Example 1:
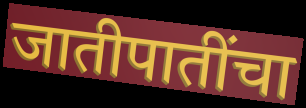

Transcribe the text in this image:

जातीपातींचा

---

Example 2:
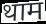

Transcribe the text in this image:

थाम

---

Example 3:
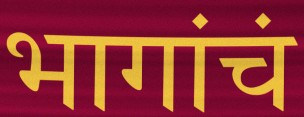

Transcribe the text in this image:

भागांचं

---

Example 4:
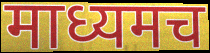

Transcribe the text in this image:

माध्यमच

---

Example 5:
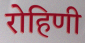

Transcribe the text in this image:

रोहिणी